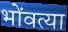
भोंवत्या